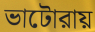
ভাটোরায়